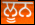
ਲੂਨ